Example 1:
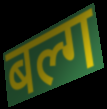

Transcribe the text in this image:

बल्ग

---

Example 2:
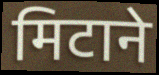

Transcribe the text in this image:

मिटाने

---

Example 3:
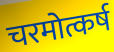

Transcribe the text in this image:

चरमोत्कर्ष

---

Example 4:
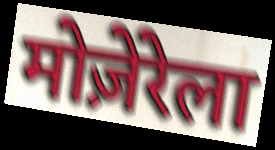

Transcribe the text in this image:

मोज़ेरेला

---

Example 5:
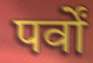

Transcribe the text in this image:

पर्वों